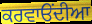
ਕਰਵਾੳਂਦੀਆ